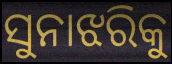
ସୁନାଝରିକୁ